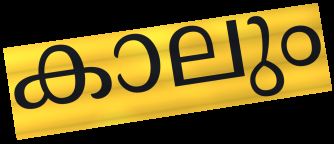
കാലും